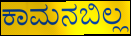
ಕಾಮನಬಿಲ್ಲ